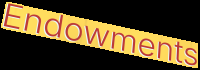
Endowments